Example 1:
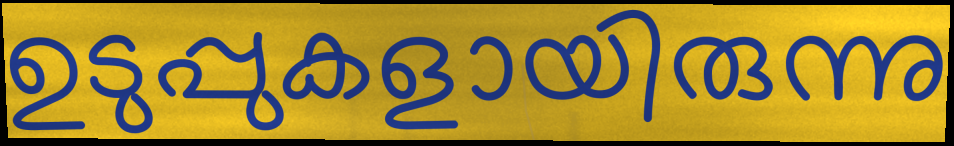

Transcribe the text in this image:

ഉടുപ്പുകളായിരുന്നു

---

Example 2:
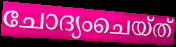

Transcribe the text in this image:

ചോദ്യംചെയ്ത്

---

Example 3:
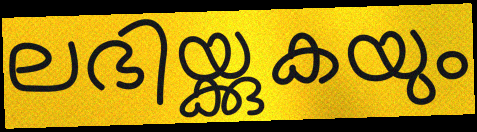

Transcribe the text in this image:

ലഭിയ്ക്കുകയും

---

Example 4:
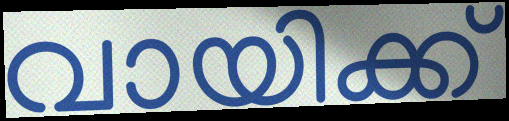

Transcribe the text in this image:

വായിക്ക്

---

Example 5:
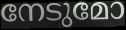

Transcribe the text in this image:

നേടുമോ